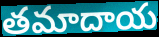
తమాదాయ